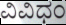
ವಿವಿಧಂ